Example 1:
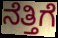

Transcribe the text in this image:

ನೆತ್ತಿಗೆ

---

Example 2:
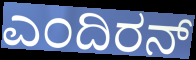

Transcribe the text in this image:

ಎಂದಿರನ್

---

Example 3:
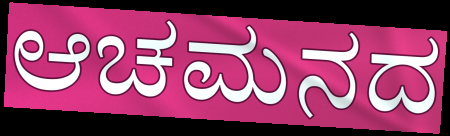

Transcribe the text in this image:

ಆಚಮನದ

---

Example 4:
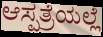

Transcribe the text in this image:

ಆಸ್ಪತ್ರೆಯಲ್ಲೆ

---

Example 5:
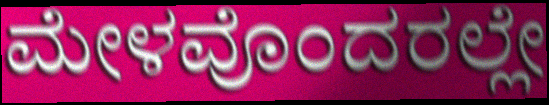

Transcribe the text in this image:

ಮೇಳವೊಂದರಲ್ಲೇ